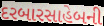
દરબારસાહેબની